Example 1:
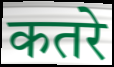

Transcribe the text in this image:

कतरे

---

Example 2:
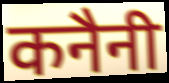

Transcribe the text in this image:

कनैनी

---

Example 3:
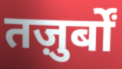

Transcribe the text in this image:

तज़ुर्बों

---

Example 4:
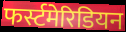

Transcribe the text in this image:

फर्स्टमेरिडियन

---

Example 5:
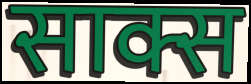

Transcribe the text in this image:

साक्स